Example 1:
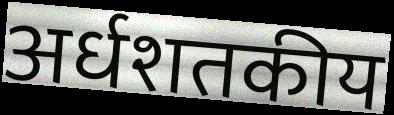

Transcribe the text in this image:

अर्धशतकीय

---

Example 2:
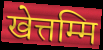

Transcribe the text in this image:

खेत्तम्मि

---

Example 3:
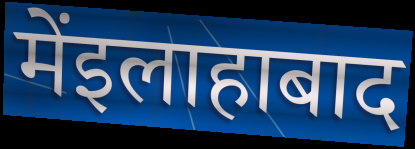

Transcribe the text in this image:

मेंइलाहाबाद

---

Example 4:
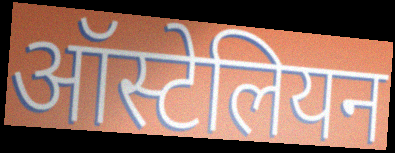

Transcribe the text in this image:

ऑस्टेलियन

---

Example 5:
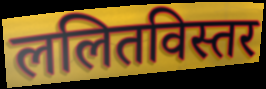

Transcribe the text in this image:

ललितविस्तर